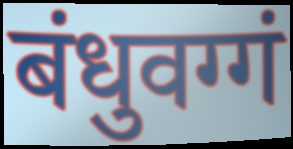
बंधुवग्गं